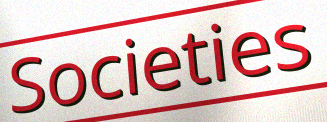
Societies